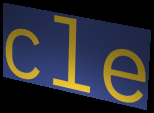
cle